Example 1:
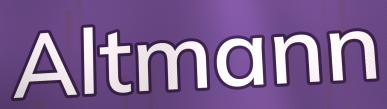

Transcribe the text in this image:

Altmann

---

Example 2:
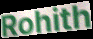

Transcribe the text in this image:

Rohith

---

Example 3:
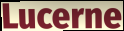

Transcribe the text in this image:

Lucerne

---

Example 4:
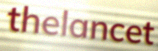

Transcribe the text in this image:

thelancet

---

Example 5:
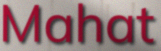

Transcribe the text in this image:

Mahat